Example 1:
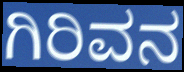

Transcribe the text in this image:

ಗಿರಿವನ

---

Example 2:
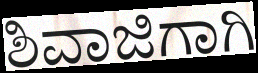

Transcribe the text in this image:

ಶಿವಾಜಿಗಾಗಿ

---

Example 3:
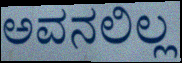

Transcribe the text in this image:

ಅವನಲಿಲ್ಲ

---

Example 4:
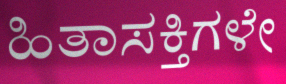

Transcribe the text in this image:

ಹಿತಾಸಕ್ತಿಗಳೇ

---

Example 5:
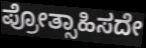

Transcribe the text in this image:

ಪ್ರೋತ್ಸಾಹಿಸದೇ